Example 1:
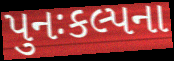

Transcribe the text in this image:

પુનઃકલ્પના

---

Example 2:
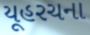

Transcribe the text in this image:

યૂહરચના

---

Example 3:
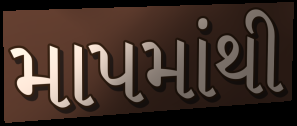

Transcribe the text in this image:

માપમાંથી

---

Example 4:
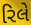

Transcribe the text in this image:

રિલે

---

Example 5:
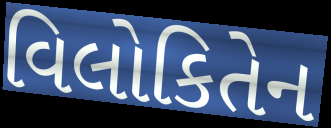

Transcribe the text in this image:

વિલોકિતેન